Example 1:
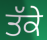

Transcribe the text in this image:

ਤੱਕੇ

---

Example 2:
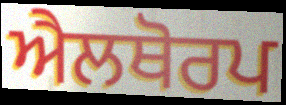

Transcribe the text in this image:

ਐਲਥੋਰਪ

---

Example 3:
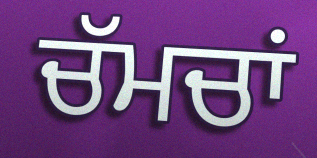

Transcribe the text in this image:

ਚੱਮਚਾਂ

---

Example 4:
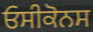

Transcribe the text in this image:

ਓਸੀਕੋਨਸ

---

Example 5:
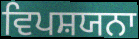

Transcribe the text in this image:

ਵਿਪਸ਼ਯਨਾ